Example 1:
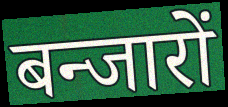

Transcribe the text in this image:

बन्जारों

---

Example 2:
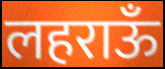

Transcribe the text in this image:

लहराऊँ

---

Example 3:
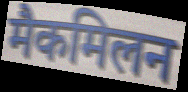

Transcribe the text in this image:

मैकमिलन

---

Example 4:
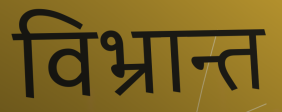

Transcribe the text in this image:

विभ्रान्त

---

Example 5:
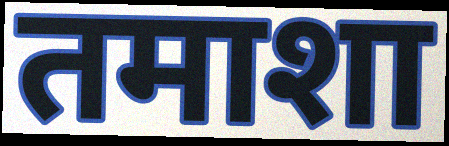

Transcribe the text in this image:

तमाशा